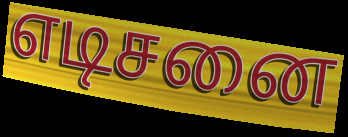
எடிசனை